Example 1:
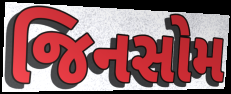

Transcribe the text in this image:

જિનસોમ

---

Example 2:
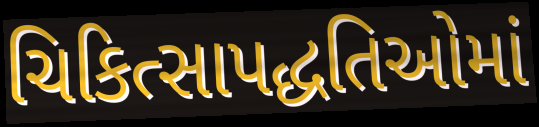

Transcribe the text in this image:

ચિકિત્સાપદ્ધતિઓમાં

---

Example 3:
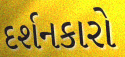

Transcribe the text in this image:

દર્શનકારો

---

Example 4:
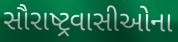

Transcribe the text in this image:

સૌરાષ્ટ્રવાસીઓના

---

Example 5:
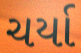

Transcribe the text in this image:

ચર્યા